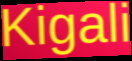
Kigali